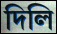
দিলি